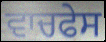
ਵਾਚਫੇਸ